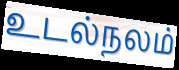
உடல்நலம்